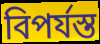
বিপর্যস্ত